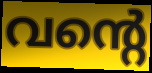
വന്റെ